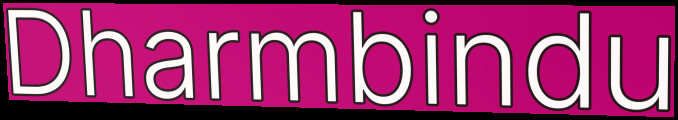
Dharmbindu